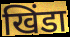
खिंडा